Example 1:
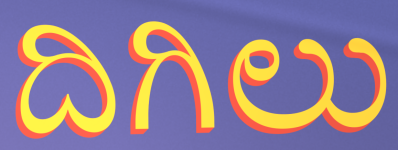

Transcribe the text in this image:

ದಿಗಿಲು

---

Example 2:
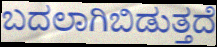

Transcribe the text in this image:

ಬದಲಾಗಿಬಿಡುತ್ತದೆ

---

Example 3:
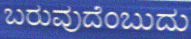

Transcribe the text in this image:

ಬರುವುದೆಂಬುದು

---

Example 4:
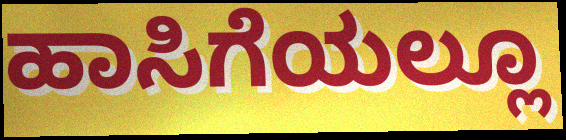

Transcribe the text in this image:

ಹಾಸಿಗೆಯಲ್ಲೂ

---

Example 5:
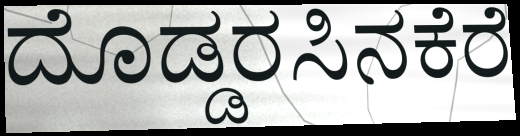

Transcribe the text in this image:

ದೊಡ್ಡರಸಿನಕೆರೆ